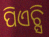
ପିଏଚ୍ସି